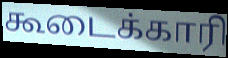
கூடைக்காரி